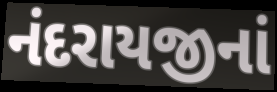
નંદરાયજીનાં